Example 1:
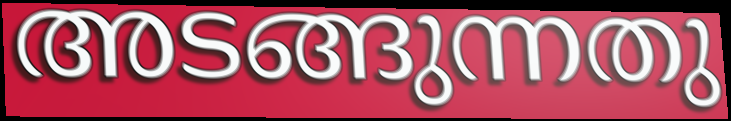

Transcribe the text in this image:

അടങ്ങുന്നതു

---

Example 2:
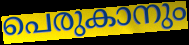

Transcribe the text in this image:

പെരുകാനും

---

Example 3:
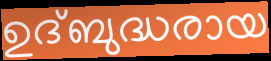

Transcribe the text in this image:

ഉദ്ബുദ്ധരായ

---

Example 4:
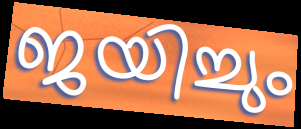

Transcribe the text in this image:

ജയിച്ചും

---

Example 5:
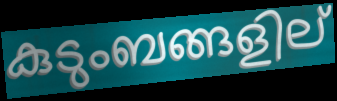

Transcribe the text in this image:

കുടുംബങ്ങളില്